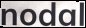
nodal